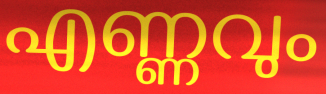
എണ്ണവും